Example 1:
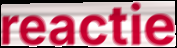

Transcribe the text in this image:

reactie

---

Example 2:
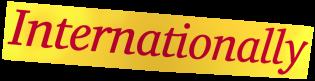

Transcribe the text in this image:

Internationally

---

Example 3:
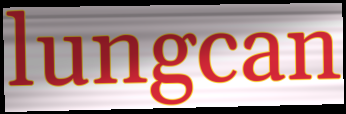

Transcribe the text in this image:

lungcan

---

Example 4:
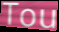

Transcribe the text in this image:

Tou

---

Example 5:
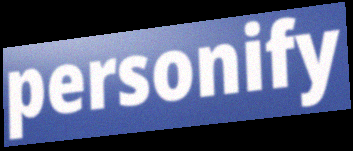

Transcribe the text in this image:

personify